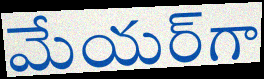
మేయర్‌గా